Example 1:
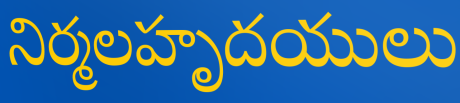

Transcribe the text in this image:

నిర్మలహృదయులు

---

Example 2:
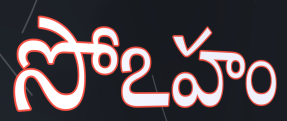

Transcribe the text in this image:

సోఽహం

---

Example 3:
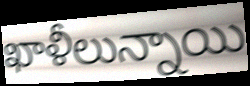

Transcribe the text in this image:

ఖాళీలున్నాయి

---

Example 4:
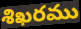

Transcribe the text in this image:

శిఖరము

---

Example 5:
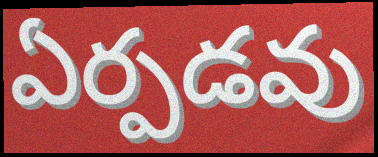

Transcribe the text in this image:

ఏర్పడవు